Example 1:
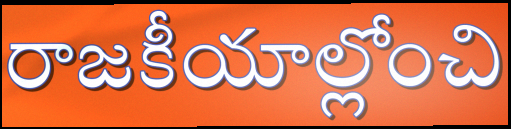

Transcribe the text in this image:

రాజకీయాల్లోంచి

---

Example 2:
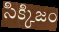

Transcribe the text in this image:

సిక్కిజం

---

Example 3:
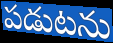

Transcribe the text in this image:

పడుటను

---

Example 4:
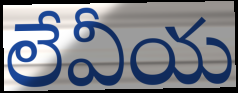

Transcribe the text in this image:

లేవీయ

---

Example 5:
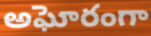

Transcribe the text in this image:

అఘోరంగా